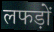
लफड़ों